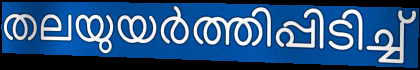
തലയുയർത്തിപ്പിടിച്ച്